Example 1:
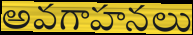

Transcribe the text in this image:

అవగాహనలు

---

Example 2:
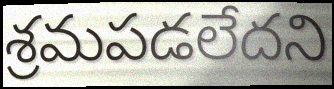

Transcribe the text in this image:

శ్రమపడలేదని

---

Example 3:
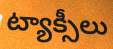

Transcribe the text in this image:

ట్యాక్సీలు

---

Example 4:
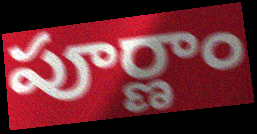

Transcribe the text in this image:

పూర్ణాం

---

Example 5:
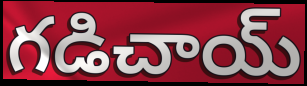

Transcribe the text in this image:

గడిచాయ్